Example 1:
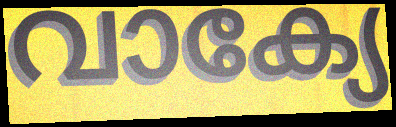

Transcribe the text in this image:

വാക്യേ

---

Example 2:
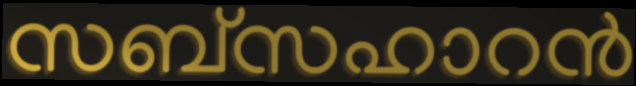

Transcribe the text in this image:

സബ്സഹാറൻ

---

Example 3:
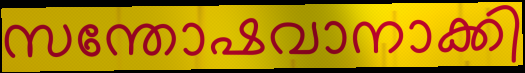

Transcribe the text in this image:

സന്തോഷവാനാക്കി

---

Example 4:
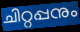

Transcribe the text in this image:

ചിറ്റപ്പനും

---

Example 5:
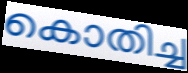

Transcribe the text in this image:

കൊതിച്ച